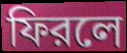
ফিরলে